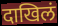
दाखिलं